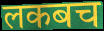
लकबच